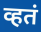
व्हतं